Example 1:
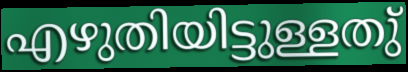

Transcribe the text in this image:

എഴുതിയിട്ടുള്ളതു്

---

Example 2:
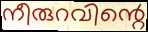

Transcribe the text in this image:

നീരുറവിന്റെ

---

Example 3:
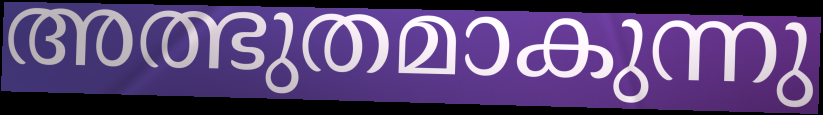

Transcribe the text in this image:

അത്ഭുതമാകുന്നു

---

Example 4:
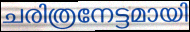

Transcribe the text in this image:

ചരിത്രനേട്ടമായി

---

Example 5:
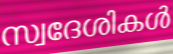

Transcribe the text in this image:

സ്വദേശികൾ